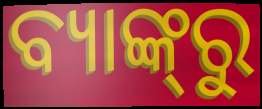
ବ୍ୟାଙ୍କ୍‌ରୁ